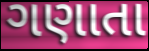
ગણાતા